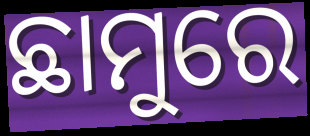
ଛାମୁରେ